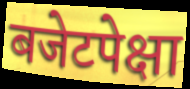
बजेटपेक्षा